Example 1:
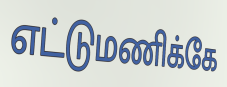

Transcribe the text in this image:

எட்டுமணிக்கே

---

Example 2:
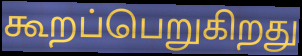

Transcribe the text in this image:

கூறப்பெறுகிறது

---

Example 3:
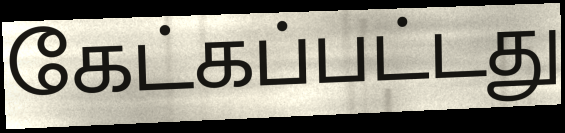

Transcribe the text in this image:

கேட்கப்பட்டது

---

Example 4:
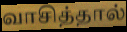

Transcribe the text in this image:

வாசித்தால்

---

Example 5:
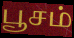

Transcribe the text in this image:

பூசம்